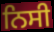
ਨਿਸੀ